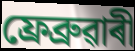
ফ্ৰেব্ৰুৱাৰী